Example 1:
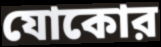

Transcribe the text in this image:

যোকোর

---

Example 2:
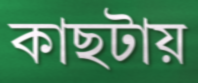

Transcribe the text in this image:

কাছটায়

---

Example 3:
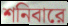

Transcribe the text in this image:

শনিবারে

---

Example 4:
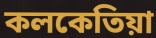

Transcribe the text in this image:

কলকেতিয়া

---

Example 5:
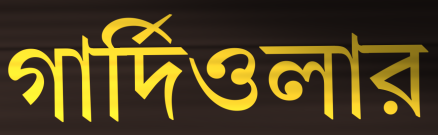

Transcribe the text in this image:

গার্দিওলার